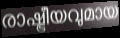
രാഷ്ട്രീയവുമായ